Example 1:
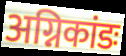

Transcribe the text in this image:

अग्निकांडः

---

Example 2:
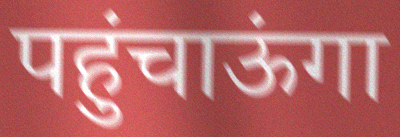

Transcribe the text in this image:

पहुंचाऊंगा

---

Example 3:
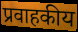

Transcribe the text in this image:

प्रवाहकीय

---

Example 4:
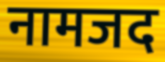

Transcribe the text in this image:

नामजद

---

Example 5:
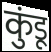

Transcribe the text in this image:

कुंडू